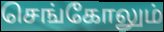
செங்கோலும்